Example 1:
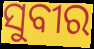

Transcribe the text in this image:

ସୁବୀର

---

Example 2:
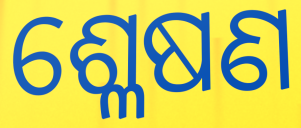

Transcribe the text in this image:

ଶ୍ଳେଷଣ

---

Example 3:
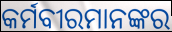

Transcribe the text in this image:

କର୍ମବୀରମାନଙ୍କର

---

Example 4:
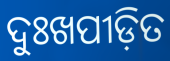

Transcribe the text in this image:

ଦୁଃଖପୀଡ଼ିତ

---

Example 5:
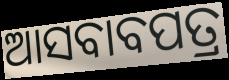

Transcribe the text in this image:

ଆସବାବପତ୍ର